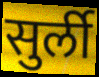
सुर्ली